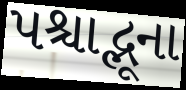
પશ્ચાદ્ભૂના